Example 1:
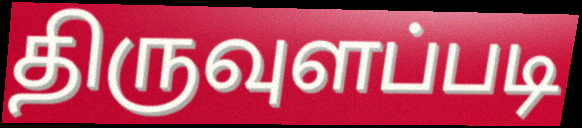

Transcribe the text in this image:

திருவுளப்படி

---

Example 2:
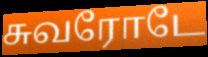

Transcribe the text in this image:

சுவரோடே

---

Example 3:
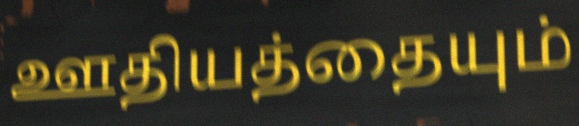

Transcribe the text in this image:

ஊதியத்தையும்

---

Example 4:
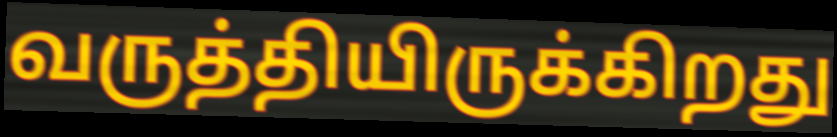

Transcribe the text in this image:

வருத்தியிருக்கிறது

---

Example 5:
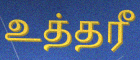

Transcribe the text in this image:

உத்தரீ